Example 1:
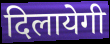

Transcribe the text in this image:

दिलायेगी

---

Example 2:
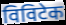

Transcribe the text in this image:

विविटेक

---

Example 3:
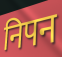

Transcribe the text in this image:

निपन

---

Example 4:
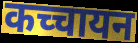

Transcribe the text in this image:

कच्चायन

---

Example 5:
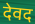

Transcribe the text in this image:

देवद